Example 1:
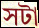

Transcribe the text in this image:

সটা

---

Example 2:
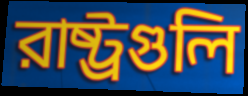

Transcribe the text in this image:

রাষ্ট্রগুলি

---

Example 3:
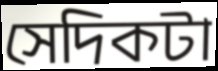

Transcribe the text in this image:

সেদিকটা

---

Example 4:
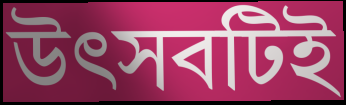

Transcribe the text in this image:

উৎসবটিই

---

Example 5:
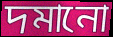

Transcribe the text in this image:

দমানো